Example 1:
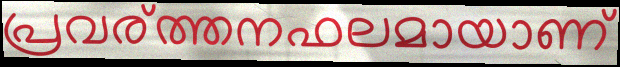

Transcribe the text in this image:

പ്രവര്ത്തനഫലമായാണ്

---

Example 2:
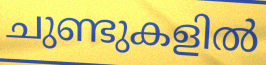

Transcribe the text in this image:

ചുണ്ടുകളിൽ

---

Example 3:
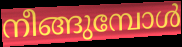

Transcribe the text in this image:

നീങ്ങുമ്പോൾ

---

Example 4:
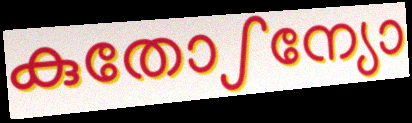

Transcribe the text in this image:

കുതോഽന്യോ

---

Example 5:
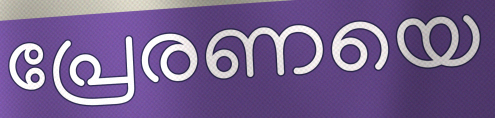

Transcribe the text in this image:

പ്രേരണയെ